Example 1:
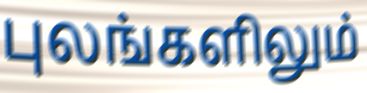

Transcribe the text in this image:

புலங்களிலும்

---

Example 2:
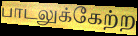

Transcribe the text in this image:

பாடலுக்கேற்ற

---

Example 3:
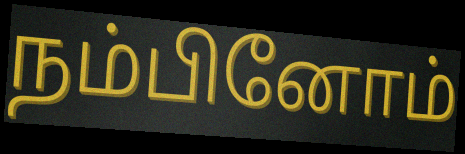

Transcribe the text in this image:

நம்பினோம்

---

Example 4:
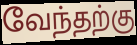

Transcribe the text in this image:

வேந்தற்கு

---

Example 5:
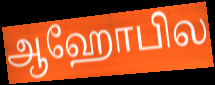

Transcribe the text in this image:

ஆஹோபில